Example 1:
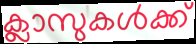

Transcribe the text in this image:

ക്ലാസുകൾക്ക്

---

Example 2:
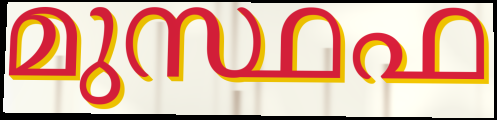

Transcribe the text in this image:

മുസ്ഥഫ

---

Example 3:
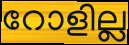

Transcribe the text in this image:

റോളില്ല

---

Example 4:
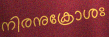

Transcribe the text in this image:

നിരനുക്രോശഃ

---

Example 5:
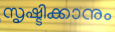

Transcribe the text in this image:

സൃഷ്ടിക്കാനും